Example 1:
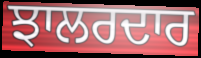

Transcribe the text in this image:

ਝਾਲਰਦਾਰ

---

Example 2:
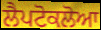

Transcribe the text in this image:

ਲੈਪਟੋਕਲੋਆ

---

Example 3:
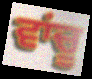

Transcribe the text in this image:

ਵਾਂਚੂ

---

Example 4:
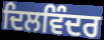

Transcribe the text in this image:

ਦਿਲਵਿੰਦਰ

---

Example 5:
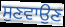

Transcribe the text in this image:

ਸੁਣਵਾਉਣ